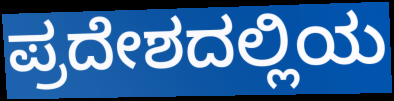
ಪ್ರದೇಶದಲ್ಲಿಯ